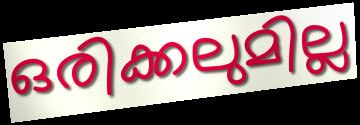
ഒരിക്കലുമില്ല